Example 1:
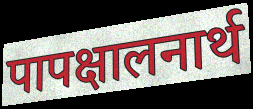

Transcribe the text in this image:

पापक्षालनार्थ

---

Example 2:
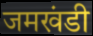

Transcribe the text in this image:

जमखंडी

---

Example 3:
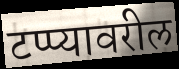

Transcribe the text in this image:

टप्प्यावरील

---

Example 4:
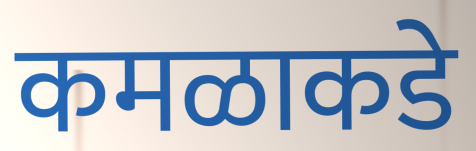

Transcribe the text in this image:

कमळाकडे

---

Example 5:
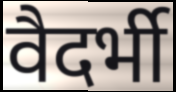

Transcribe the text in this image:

वैदर्भी